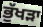
ਭੁੱਖੜਾ